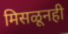
मिसळूनही